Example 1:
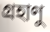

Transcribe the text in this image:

গ্রহাণু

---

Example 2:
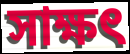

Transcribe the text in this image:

সাক্ষৎ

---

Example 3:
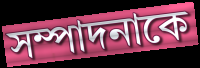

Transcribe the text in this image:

সম্পাদনাকে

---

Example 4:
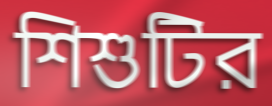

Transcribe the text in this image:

শিশুটির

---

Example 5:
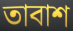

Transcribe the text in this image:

তাবাশ